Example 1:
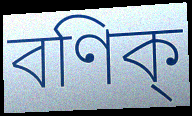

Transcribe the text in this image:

বণিক্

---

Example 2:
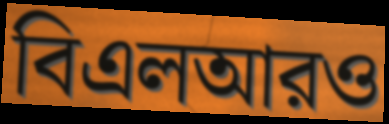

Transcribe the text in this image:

বিএলআরও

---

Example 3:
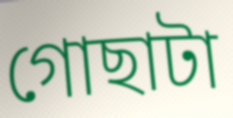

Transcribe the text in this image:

গোছাটা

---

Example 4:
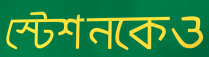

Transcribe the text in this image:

স্টেশনকেও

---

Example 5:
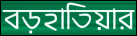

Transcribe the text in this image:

বড়হাতিয়ার